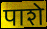
पाशे